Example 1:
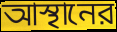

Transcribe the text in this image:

আস্থানের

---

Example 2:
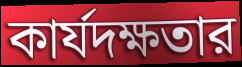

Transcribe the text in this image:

কার্যদক্ষতার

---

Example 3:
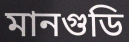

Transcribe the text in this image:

মানগুডি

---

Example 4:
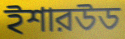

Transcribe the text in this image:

ইশারউড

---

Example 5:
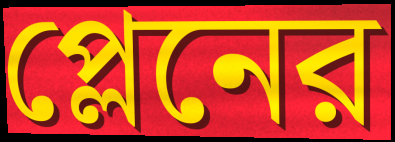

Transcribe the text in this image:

প্লেনের